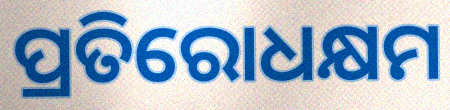
ପ୍ରତିରୋଧକ୍ଷମ